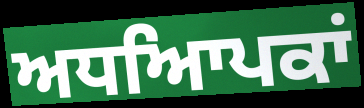
ਅਧਆਿਪਕਾਂ